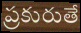
ప్రకురుతే